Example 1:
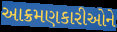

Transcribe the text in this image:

આક્રમણકારીઓને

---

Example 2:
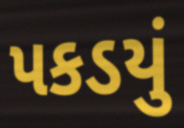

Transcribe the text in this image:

પકડયું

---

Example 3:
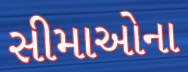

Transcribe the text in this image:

સીમાઓના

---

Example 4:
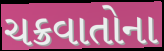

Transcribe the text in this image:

ચક્રવાતોના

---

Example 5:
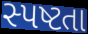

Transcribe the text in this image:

સ્પષ્ટતા